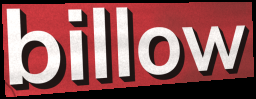
billow